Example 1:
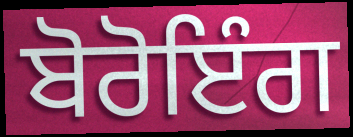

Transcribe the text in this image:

ਬੋਰੋਇੰਗ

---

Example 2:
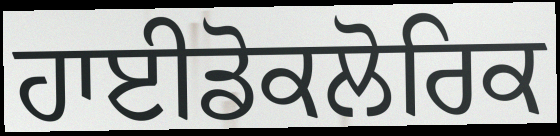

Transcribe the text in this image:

ਹਾਈਡੋਕਲੋਰਿਕ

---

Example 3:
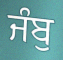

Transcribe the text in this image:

ਜੰਬੁ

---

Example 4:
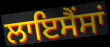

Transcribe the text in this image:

ਲਾਇਸੈਂਸਾਂ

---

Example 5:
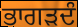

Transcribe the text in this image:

ਭਾਗੜਦੰ